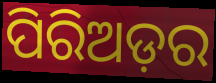
ପିରିଅଡ଼ର